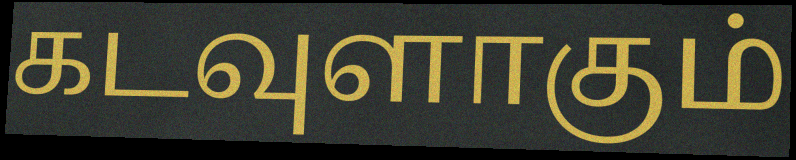
கடவுளாகும்